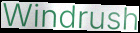
Windrush